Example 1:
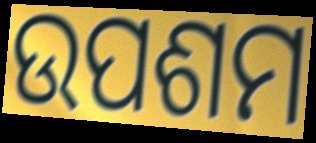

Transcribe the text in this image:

ଉପଶମ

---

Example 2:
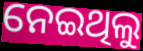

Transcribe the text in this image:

ନେଇଥିଲୁ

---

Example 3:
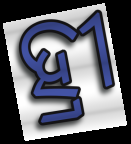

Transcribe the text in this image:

ହ୍ରୀ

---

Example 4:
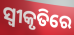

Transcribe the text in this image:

ସ୍ବୀକୃତିରେ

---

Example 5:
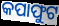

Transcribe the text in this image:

କପାଫୁଟ